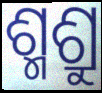
ଶ୍ମଶ୍ରୁ